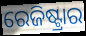
ରେଜିଷ୍ଟ୍ରାର